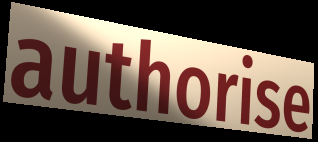
authorise